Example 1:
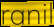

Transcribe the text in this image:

ranil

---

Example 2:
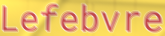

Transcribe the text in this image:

Lefebvre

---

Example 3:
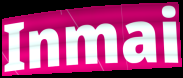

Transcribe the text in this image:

Inmai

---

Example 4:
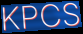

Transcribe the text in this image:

KPCS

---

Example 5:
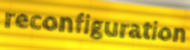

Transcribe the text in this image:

reconfiguration